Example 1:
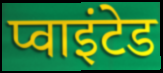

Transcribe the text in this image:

प्वाइंटेड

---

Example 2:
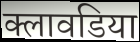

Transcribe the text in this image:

क्लावडिया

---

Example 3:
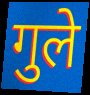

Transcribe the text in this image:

गुले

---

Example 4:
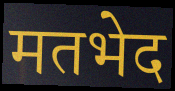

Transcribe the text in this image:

मतभेद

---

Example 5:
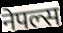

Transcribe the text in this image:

नेपल्स